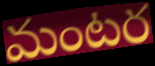
మంటర